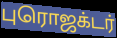
புரொஜக்டர்